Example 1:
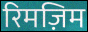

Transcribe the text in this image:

रिमज़िम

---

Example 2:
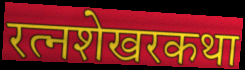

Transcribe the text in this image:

रत्नशेखरकथा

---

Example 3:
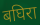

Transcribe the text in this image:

बघिरा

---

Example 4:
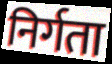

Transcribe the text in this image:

निर्गता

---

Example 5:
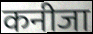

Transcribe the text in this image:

कनीजा